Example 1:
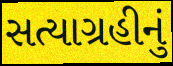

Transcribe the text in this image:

સત્યાગ્રહીનું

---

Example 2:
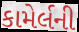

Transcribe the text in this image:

કામેર્લની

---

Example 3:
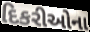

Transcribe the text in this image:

દિકરીઓના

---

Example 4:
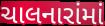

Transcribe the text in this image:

ચાલનારાંમાં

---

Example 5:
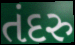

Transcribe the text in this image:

તંદરુ